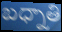
బధ్నాతి